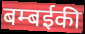
बम्बईकी